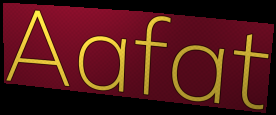
Aafat